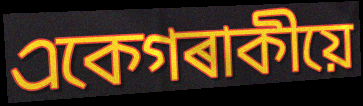
একেগৰাকীয়ে